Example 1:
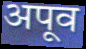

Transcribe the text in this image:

अपूव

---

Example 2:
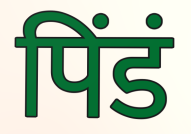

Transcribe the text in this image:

पिंडं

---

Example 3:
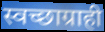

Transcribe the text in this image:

स्वच्छाग्राही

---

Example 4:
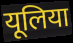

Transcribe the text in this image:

यूलिया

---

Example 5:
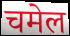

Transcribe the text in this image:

चमेल